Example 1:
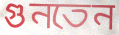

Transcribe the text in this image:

গুনতেন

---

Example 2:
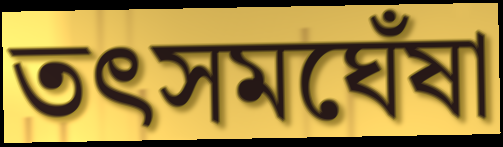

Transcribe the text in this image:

তৎসমঘেঁষা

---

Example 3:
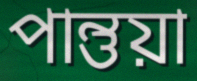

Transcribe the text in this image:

পান্তুয়া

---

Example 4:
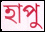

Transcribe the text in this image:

হাপু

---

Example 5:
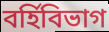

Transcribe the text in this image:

বর্হিবিভাগ